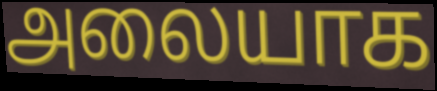
அலையாக